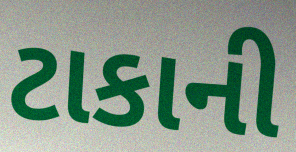
ટાકાની